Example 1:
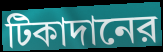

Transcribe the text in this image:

টিকাদানের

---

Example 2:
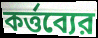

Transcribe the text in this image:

কর্ত্তব্যের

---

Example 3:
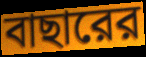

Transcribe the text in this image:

বাছারের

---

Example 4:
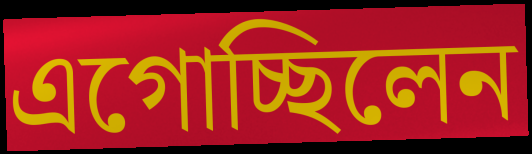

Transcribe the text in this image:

এগোচ্ছিলেন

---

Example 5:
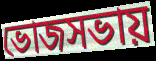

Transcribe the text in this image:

ভোজসভায়